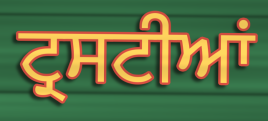
ਟ੍ਰਸਟੀਆਂ